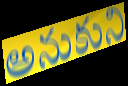
అనుకుని